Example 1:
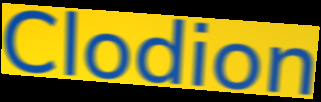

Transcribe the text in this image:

Clodion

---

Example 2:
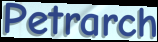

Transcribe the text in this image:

Petrarch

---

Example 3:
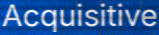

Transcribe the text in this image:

Acquisitive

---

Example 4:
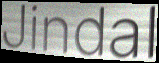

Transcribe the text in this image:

Jindal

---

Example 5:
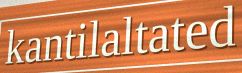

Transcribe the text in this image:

kantilaltated